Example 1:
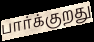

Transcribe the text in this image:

பார்க்குறது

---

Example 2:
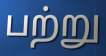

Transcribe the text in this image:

பற்று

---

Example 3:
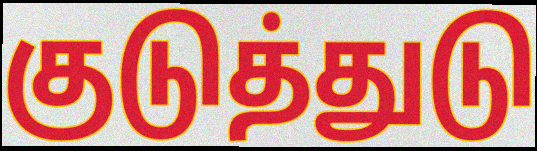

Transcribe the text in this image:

குடுத்துடு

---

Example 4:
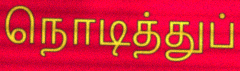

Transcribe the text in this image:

நொடித்துப்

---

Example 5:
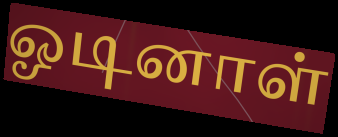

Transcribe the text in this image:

ஓடினாள்